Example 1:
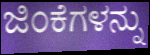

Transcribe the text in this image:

ಜಿಂಕೆಗಳನ್ನು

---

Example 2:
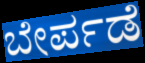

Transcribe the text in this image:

ಬೇರ್ಪಡೆ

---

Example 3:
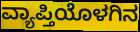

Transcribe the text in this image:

ವ್ಯಾಪ್ತಿಯೊಳಗಿನ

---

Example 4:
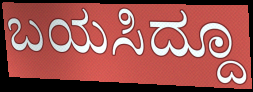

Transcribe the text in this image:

ಬಯಸಿದ್ದೂ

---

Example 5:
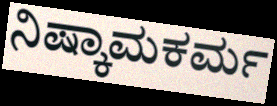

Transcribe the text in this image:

ನಿಷ್ಕಾಮಕರ್ಮ